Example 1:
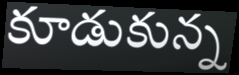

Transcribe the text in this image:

కూడుకున్న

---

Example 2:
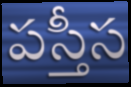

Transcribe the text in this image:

పస్తీస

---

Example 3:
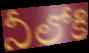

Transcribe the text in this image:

నీలోకి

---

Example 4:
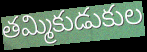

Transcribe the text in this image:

తమ్మికుడుకుల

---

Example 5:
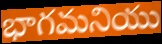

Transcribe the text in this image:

భాగమనియు